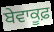
ਬੇਵਾਕੂਫ਼